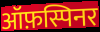
ऑफ़स्पिनर